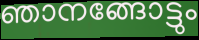
ഞാനങ്ങോട്ടും